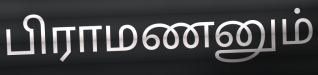
பிராமணனும்